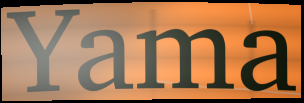
Yama